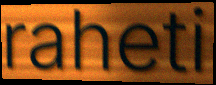
raheti